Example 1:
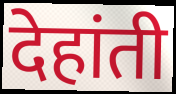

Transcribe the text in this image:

देहांती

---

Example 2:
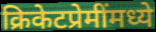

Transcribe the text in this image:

क्रिकेटप्रेमींमध्ये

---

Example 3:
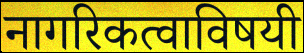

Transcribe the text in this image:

नागरिकत्वाविषयी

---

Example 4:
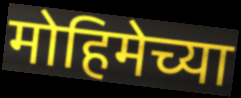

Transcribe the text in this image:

मोहिमेच्या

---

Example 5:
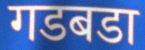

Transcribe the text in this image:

गडबडा